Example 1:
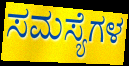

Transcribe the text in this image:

ಸಮಸ್ಯೆಗಳ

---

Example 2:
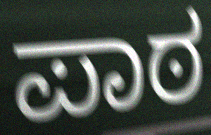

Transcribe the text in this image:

ಪಾಠ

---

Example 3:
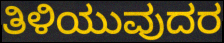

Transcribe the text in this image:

ತಿಳಿಯುವುದರ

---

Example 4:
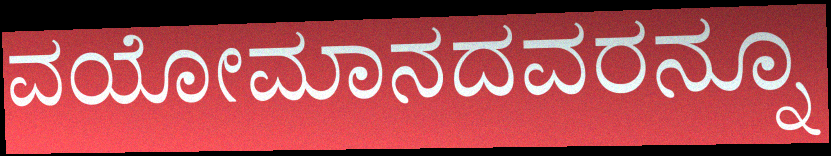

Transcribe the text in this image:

ವಯೋಮಾನದವರನ್ನೂ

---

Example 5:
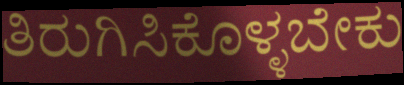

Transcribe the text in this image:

ತಿರುಗಿಸಿಕೊಳ್ಳಬೇಕು